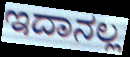
ಇದಾನಲ್ಲ